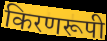
किरणरूपी